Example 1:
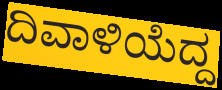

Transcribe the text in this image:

ದಿವಾಳಿಯೆದ್ದ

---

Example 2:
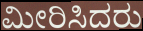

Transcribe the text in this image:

ಮೀರಿಸಿದರು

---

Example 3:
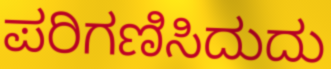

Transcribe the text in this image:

ಪರಿಗಣಿಸಿದುದು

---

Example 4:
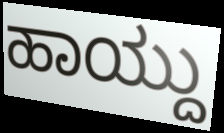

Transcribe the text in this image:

ಹಾಯ್ದು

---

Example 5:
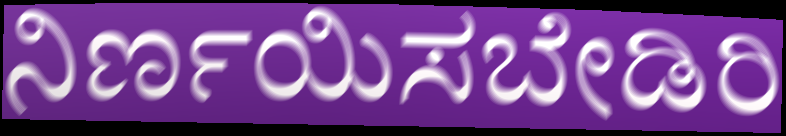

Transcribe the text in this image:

ನಿರ್ಣಯಿಸಬೇಡಿರಿ